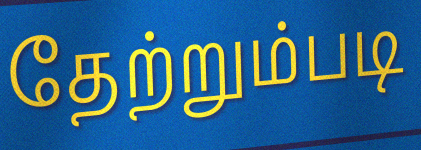
தேற்றும்படி